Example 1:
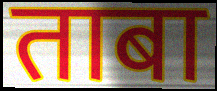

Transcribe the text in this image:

ताबा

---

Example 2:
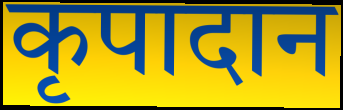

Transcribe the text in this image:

कृपादान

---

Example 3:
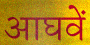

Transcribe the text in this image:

आघवें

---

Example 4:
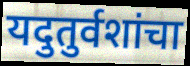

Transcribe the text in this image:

यदुतुर्वशांचा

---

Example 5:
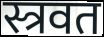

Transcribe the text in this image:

स्त्रवत